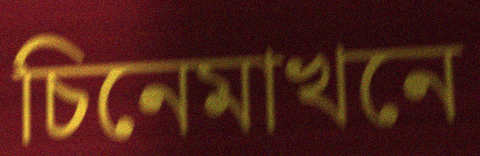
চিনেমাখনে